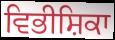
ਵਿਭੀਸ਼ਿਕਾ